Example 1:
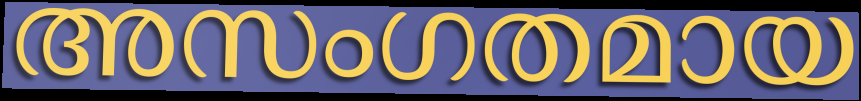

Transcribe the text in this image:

അസംഗതമായ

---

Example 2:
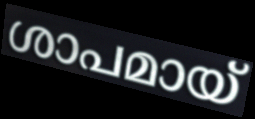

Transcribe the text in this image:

ശാപമായ്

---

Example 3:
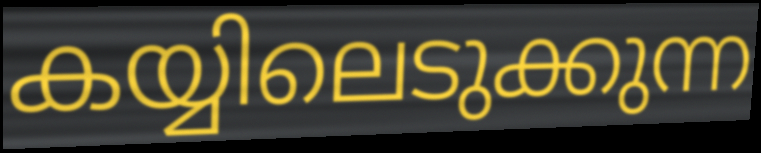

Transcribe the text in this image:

കയ്യിലെടുക്കുന്ന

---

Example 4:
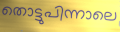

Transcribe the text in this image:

തൊട്ടുപിന്നാലെ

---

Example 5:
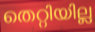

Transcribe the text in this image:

തെറ്റിയില്ല